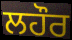
ਲਹੌਰ